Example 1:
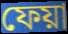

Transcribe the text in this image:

ফেয়া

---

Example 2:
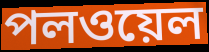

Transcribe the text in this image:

পলওয়েল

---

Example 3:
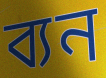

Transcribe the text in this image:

ব্যন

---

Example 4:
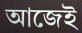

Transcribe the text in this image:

আজেই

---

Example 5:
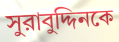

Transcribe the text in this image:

সুরাবুদ্দিনকে